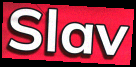
Slav